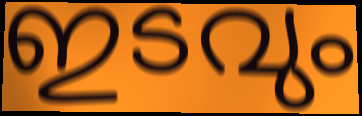
ഇടവും